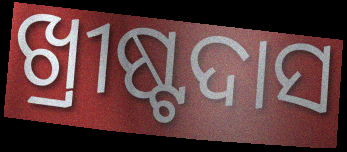
ଖ୍ରୀଷ୍ଟଦାସ